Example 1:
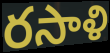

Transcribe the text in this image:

రసాళి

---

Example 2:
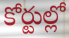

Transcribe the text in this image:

కోర్టుల్లో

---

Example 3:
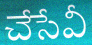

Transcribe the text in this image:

చేసేవీ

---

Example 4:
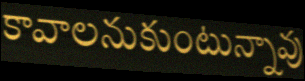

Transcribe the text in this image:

కావాలనుకుంటున్నావు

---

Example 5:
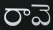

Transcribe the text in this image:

రావె